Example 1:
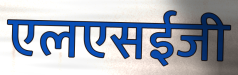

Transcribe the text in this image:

एलएसईजी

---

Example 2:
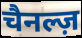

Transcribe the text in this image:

चैनल्ज़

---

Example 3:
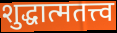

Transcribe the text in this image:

शुद्धात्मतत्त्व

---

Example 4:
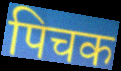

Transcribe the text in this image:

पिचक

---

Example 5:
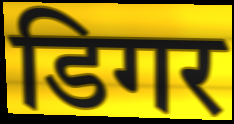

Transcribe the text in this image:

डिगर